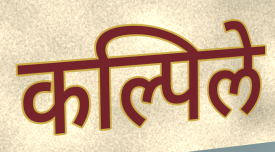
कल्पिले